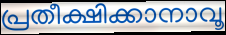
പ്രതീക്ഷിക്കാനാവൂ